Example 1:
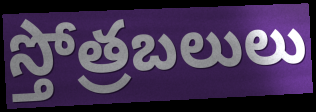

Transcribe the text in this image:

స్తోత్రబలులు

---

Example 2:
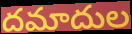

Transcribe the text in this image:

దమాదుల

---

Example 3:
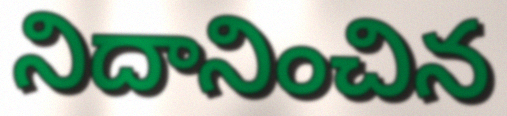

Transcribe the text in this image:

నిదానించిన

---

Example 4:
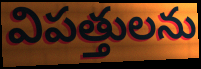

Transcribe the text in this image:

విపత్తులను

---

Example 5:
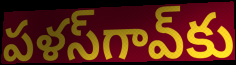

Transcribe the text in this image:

పళస్‌గావ్‌కు